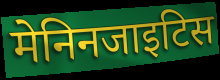
मेनिनजाइटिस